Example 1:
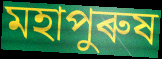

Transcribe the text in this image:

মহাপুৰুষ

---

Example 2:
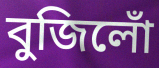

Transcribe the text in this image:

বুজিলোঁ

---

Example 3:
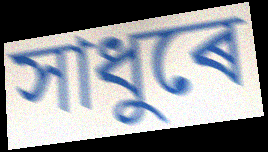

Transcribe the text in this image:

সাধুৰে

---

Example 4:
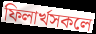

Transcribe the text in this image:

ফিলাৰ্খসকলে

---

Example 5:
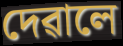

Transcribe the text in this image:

দেৱালে